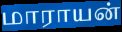
மாராயன்